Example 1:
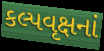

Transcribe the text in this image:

કલ્પવૃક્ષનાં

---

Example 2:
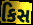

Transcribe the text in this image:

કિસ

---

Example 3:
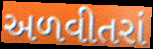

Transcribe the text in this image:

અળવીતરાં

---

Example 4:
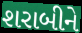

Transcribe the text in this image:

શરાબીને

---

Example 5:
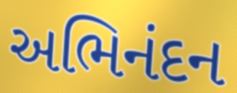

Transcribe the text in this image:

અભિનંદન